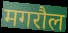
मगरौल